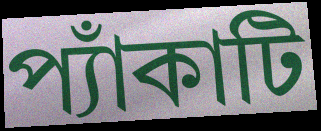
প্যাঁকাটি